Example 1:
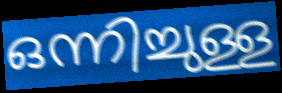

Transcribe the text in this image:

ഒന്നിച്ചുള്ള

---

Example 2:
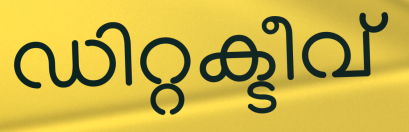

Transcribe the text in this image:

ഡിറ്റക്ടീവ്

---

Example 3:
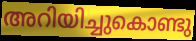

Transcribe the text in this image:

അറിയിച്ചുകൊണ്ടു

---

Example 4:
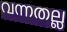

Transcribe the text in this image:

വന്നതല്ല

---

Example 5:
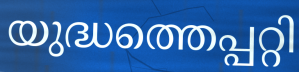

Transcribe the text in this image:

യുദ്ധത്തെപ്പറ്റി